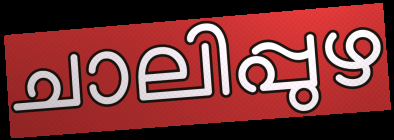
ചാലിപ്പുഴ